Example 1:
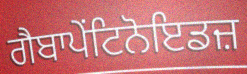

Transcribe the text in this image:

ਗੈਬਾਪੇਂਟਿਨੋਇਡਜ਼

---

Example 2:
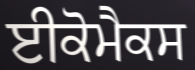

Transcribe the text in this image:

ਈਕੋਮੈਕਸ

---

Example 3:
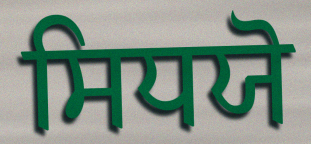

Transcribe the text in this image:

ਸਿਧਯੋ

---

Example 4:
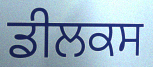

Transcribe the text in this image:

ਡੀਲਕਸ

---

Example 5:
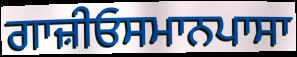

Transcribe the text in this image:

ਗਾਜ਼ੀਓਸਮਾਨਪਾਸਾ